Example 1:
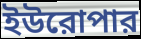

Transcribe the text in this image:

ইউরোপার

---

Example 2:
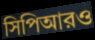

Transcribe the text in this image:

সিপিআরও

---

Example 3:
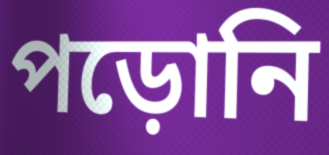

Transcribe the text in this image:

পড়োনি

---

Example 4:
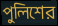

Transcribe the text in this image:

পুলিশের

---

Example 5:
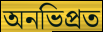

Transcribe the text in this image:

অনভিপ্রত